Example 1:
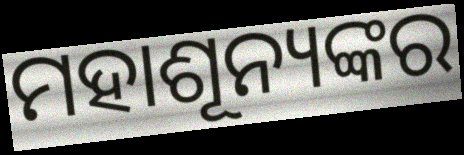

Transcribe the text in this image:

ମହାଶୂନ୍ୟଙ୍କର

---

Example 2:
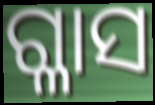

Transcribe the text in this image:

ଗ୍ଳାସ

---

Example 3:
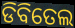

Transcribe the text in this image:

ଡିବିତେଲ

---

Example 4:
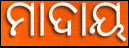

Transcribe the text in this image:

ମାଦାୟ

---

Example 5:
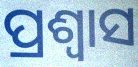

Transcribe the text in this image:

ପ୍ରଶ୍ୱାସ